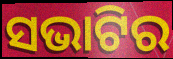
ସଭାଟିର